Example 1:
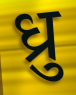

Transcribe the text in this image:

ध्रु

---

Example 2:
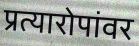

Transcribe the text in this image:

प्रत्यारोपांवर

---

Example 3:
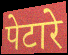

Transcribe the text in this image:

पेटारे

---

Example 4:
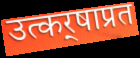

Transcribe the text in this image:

उत्कर्षाप्रत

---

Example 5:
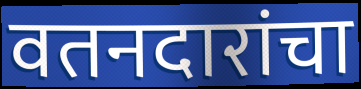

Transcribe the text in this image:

वतनदारांचा